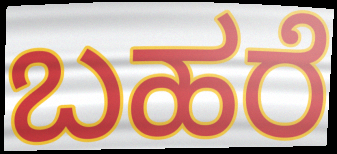
ಬಹರೆ